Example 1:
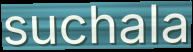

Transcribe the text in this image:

suchala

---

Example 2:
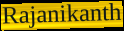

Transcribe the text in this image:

Rajanikanth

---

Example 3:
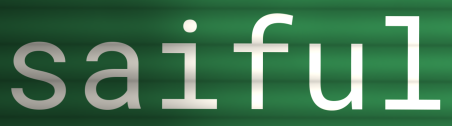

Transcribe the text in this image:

saiful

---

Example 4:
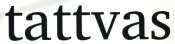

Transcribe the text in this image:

tattvas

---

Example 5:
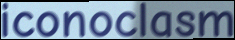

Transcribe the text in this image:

iconoclasm